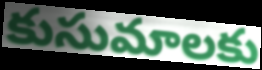
కుసుమాలకు